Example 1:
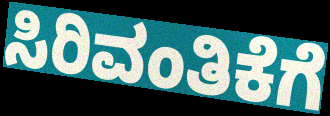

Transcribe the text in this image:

ಸಿರಿವಂತಿಕೆಗೆ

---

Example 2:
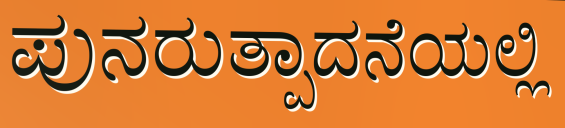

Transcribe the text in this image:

ಪುನರುತ್ಪಾದನೆಯಲ್ಲಿ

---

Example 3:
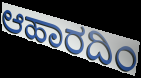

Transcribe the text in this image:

ಆಹಾರದಿಂ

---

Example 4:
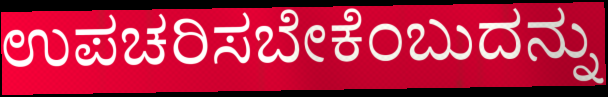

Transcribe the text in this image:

ಉಪಚರಿಸಬೇಕೆಂಬುದನ್ನು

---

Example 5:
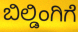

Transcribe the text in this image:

ಬಿಲ್ಡಿಂಗಿಗೆ